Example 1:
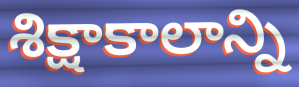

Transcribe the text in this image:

శిక్షాకాలాన్ని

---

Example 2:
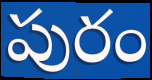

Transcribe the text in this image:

పురం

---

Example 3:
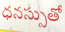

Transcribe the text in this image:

ధనస్సుతో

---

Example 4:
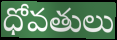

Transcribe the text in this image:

ధోవతులు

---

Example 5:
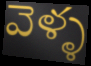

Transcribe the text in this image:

వెళ్ళ